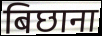
बिछाना